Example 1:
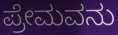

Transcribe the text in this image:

ಪ್ರೇಮವನು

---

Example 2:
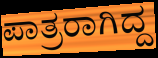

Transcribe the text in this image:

ಪಾತ್ರರಾಗಿದ್ದ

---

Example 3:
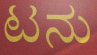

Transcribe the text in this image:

ಟನು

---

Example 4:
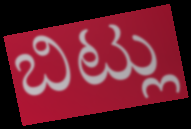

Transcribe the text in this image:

ಬಿಟ್ಲು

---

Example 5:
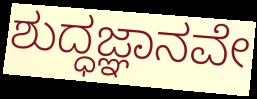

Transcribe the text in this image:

ಶುದ್ಧಜ್ಞಾನವೇ